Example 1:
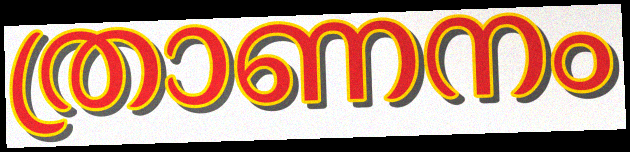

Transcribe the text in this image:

ത്രാണനം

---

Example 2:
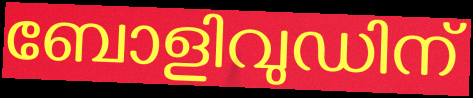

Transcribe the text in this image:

ബോളിവുഡിന്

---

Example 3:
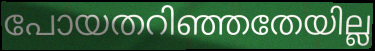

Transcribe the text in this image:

പോയതറിഞ്ഞതേയില്ല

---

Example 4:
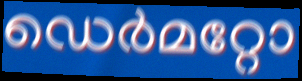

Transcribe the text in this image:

ഡെർമറ്റോ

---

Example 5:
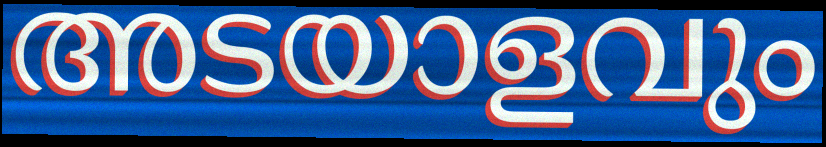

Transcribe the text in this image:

അടയാളവും